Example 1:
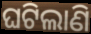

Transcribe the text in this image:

ଘଟିଲାଣି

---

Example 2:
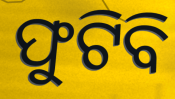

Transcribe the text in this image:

ଫୁଟିବି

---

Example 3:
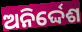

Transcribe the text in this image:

ଅନିର୍ଦ୍ଦେଶ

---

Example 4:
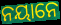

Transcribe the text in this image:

ନୟାନେ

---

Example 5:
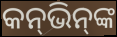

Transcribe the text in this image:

କନ୍‌ଭିନ୍‌ଙ୍କ